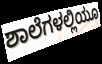
ಶಾಲೆಗಳಲ್ಲಿಯೂ